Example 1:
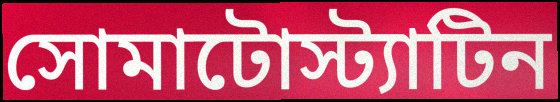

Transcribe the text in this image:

সোমাটোস্ট্যাটিন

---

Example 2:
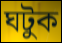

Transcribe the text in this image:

ঘটুক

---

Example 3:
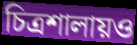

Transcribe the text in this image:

চিত্রশালায়ও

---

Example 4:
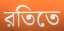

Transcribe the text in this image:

রতিতে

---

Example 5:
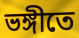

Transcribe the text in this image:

ভঙ্গীতে